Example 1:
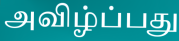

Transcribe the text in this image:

அவிழ்ப்பது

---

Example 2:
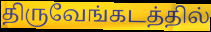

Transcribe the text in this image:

திருவேங்கடத்தில்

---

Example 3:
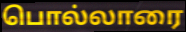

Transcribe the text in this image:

பொல்லாரை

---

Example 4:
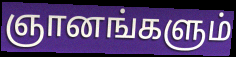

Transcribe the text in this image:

ஞானங்களும்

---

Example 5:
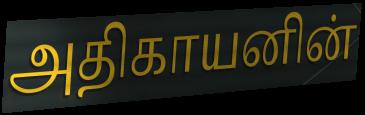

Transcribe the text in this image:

அதிகாயனின்